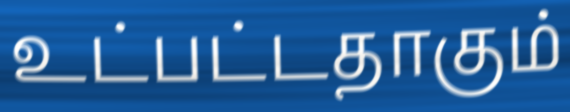
உட்பட்டதாகும்